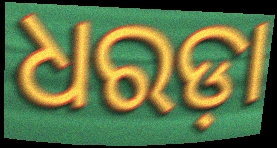
ଧରଡ଼ା